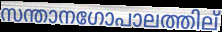
സന്താനഗോപാലത്തില്